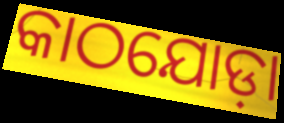
କାଠଯୋଡ଼ା